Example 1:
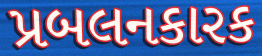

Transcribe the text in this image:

પ્રબલનકારક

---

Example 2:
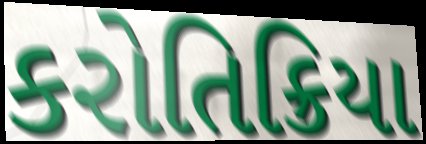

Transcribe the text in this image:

કરોતિક્રિયા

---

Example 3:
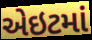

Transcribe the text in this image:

એઇટમાં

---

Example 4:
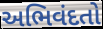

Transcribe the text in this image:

અભિવંદતો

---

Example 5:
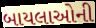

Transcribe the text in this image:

બાયલાઓની